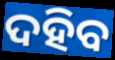
ଦହିବ